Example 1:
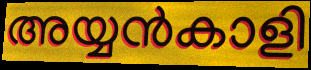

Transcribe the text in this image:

അയ്യൻകാളി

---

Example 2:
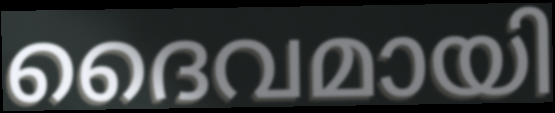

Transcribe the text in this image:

ദൈവമായി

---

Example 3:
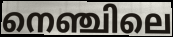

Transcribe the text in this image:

നെഞ്ചിലെ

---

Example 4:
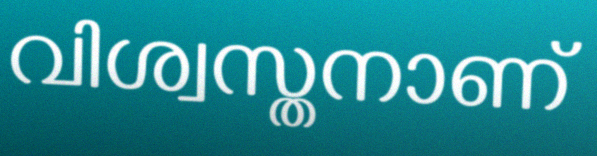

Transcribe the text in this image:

വിശ്വസ്തനാണ്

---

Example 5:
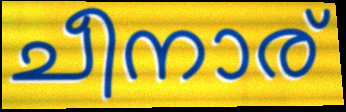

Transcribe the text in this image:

ചീനാര്